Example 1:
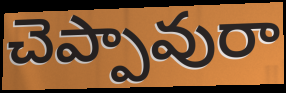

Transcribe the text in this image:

చెప్పావురా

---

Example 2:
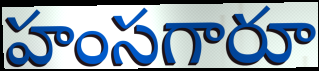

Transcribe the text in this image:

హంసగారూ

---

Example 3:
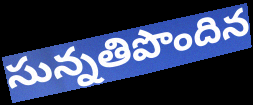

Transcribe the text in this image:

సున్నతిపొందిన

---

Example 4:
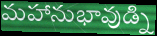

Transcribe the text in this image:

మహానుభావుడ్ని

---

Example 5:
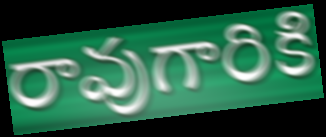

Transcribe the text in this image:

రావుగారికి